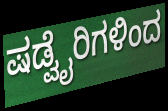
ಷಡ್ವೈರಿಗಳಿಂದ